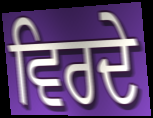
ਵਿਰਦੇ